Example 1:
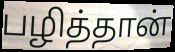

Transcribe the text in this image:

பழித்தான்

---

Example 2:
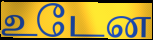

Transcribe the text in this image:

உடேன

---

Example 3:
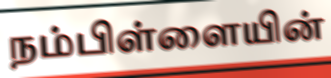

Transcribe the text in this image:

நம்பிள்ளையின்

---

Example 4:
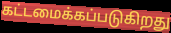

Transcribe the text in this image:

கட்டமைக்கப்படுகிறது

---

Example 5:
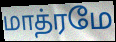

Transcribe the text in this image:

மாத்ரமே